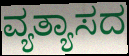
ವ್ಯತ್ಯಾಸದ